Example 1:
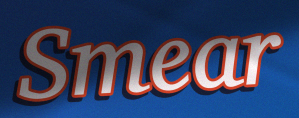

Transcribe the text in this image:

Smear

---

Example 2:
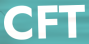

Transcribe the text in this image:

CFT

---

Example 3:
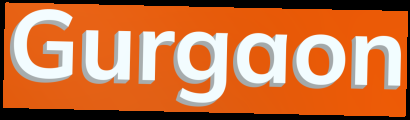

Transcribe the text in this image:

Gurgaon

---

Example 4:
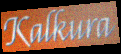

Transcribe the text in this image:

Kalkura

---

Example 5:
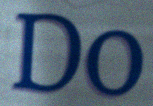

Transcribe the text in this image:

Do